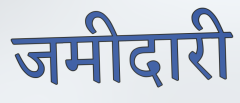
जमीदारी